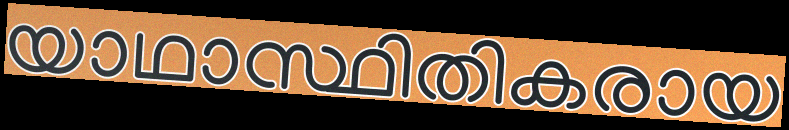
യാഥാസ്ഥിതികരായ